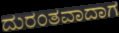
ದುರಂತವಾದಾಗ